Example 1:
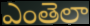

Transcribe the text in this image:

ఎంతెలా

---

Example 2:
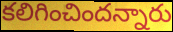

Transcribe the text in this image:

కలిగించిందన్నారు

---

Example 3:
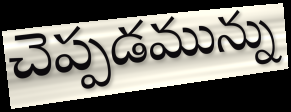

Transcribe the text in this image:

చెప్పడమున్ను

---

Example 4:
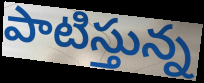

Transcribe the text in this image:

పాటిస్తున్న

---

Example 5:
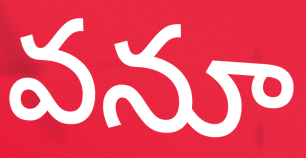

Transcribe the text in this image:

వనూ